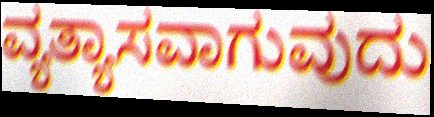
ವ್ಯತ್ಯಾಸವಾಗುವುದು